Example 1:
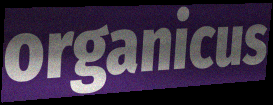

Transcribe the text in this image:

organicus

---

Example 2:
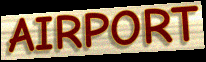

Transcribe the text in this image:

AIRPORT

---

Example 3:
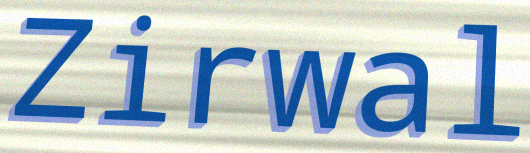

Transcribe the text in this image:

Zirwal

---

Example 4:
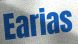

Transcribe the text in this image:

Earias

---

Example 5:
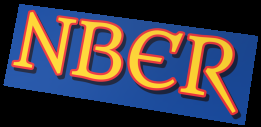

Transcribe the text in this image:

NBER